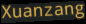
Xuanzang